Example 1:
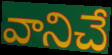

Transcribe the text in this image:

వానిచే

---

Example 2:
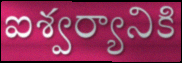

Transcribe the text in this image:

ఐశ్వర్యానికి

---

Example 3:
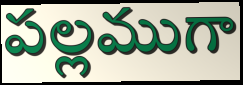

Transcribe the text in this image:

పల్లముగా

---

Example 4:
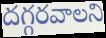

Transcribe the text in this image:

దగ్గరవాలని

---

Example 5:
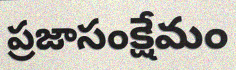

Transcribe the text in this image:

ప్రజాసంక్షేమం